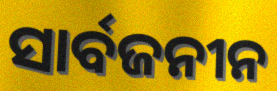
ସାର୍ବଜନୀନ